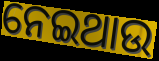
ନେଇଥାଉ